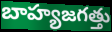
బాహ్యజగత్తు